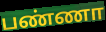
பண்ணா